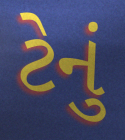
ટેનું